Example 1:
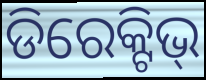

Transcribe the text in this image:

ଡିରେକ୍ଟିଭ୍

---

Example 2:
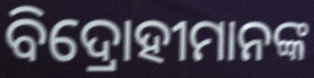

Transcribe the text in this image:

ବିଦ୍ରୋହୀମାନଙ୍କ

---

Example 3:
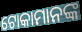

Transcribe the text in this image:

ଟୋକାମାନଙ୍କ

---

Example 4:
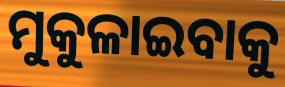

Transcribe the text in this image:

ମୁକୁଳାଇବାକୁ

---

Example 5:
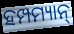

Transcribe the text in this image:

ହମ୍ପମ୍ୟାନ୍